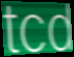
tcd